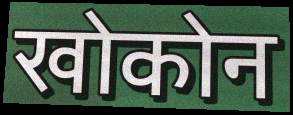
खोकोन